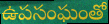
ఉపసంఘంతో